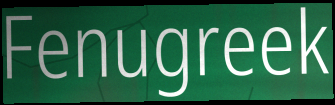
Fenugreek